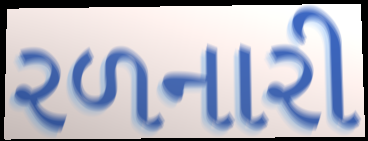
રળનારી